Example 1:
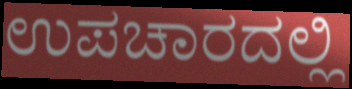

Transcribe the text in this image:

ಉಪಚಾರದಲ್ಲಿ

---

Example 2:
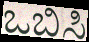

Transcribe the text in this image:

ಒಬಿಸಿ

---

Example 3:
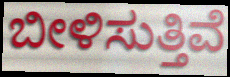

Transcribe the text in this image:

ಬೀಳಿಸುತ್ತಿವೆ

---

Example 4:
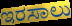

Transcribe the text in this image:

ಇರಸಾಲು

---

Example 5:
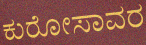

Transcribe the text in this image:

ಕುರೋಸಾವರ